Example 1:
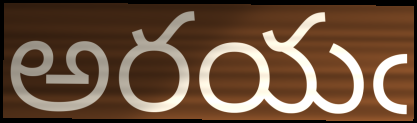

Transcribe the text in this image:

అరయఁ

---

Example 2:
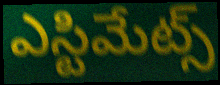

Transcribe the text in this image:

ఎస్టిమేట్స్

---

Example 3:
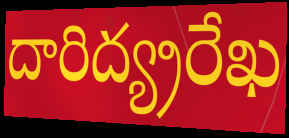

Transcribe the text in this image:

దారిద్య్రరేఖ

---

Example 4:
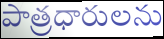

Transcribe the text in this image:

పాత్రధారులను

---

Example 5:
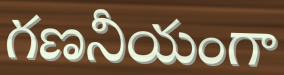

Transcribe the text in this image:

గణనీయంగా